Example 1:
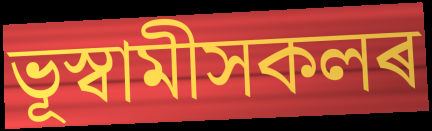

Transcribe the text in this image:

ভূস্বামীসকলৰ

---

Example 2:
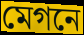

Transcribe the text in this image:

মেগনে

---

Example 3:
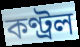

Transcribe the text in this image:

কণ্ট্ৰল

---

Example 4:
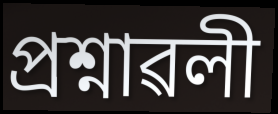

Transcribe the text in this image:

প্ৰশ্নাৱলী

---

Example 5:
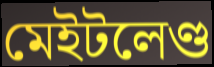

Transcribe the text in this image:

মেইটলেণ্ড